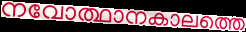
നവോത്ഥാനകാലത്തെ